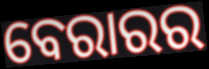
ବେରାରର